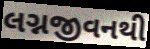
લગ્નજીવનથી